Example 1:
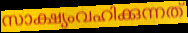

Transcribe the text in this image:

സാക്ഷ്യംവഹിക്കുന്നത്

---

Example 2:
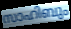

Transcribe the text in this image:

സാഹിബും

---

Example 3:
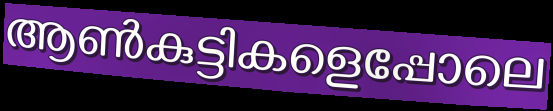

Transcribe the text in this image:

ആൺകുട്ടികളെപ്പോലെ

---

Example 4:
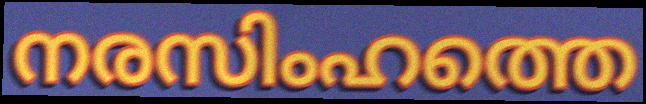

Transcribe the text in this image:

നരസിംഹത്തെ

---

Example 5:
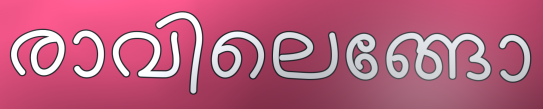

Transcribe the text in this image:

രാവിലെങ്ങോ